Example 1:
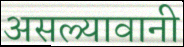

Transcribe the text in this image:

असल्यावानी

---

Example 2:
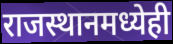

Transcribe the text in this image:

राजस्थानमध्येही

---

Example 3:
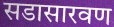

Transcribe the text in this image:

सडासारवण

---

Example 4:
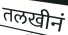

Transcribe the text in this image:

तलखीनं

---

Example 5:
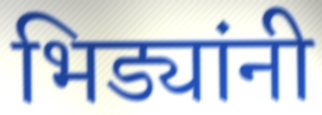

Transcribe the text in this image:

भिड्यांनी